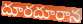
దూరదూరాన